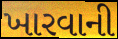
ખારવાની